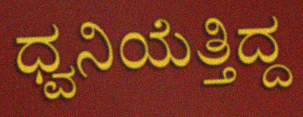
ಧ್ವನಿಯೆತ್ತಿದ್ದ